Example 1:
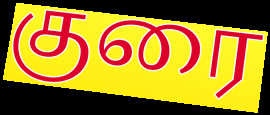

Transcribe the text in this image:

குரை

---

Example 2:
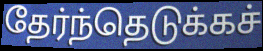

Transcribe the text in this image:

தேர்ந்தெடுக்கச்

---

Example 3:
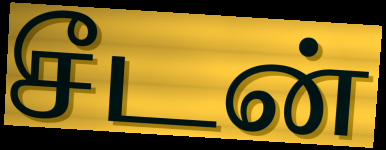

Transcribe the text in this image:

சீடன்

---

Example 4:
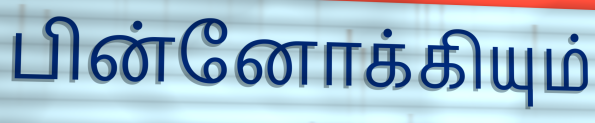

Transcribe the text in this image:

பின்னோக்கியும்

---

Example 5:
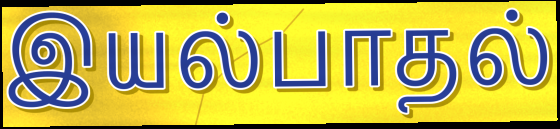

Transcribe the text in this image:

இயல்பாதல்